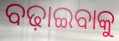
ବଢ଼ାଇବାକୁ